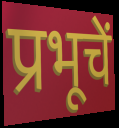
प्रभूचें